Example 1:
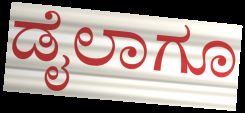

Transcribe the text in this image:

ಡೈಲಾಗೂ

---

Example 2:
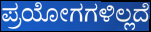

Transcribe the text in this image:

ಪ್ರಯೋಗಗಳಿಲ್ಲದೆ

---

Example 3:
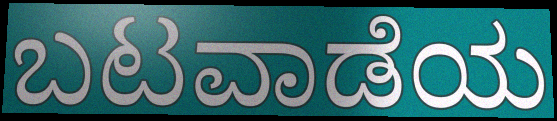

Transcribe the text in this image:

ಬಟವಾಡೆಯ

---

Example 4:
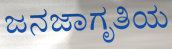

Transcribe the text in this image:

ಜನಜಾಗೃತಿಯ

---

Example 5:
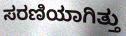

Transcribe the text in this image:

ಸರಣಿಯಾಗಿತ್ತು